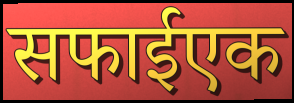
सफाईएक